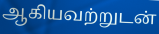
ஆகியவற்றுடன்